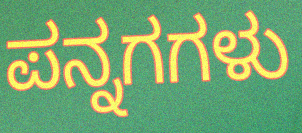
ಪನ್ನಗಗಳು